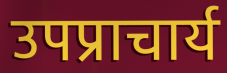
उपप्राचार्य